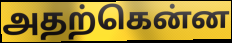
அதற்கென்ன